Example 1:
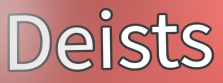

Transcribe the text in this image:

Deists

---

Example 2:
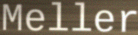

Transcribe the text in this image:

Meller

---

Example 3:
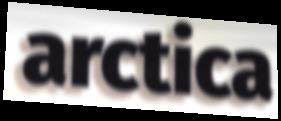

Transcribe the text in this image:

arctica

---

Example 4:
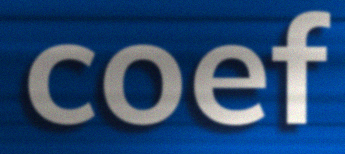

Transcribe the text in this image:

coef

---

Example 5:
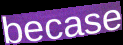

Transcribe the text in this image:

becase